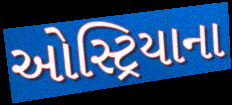
ઓસ્ટ્રિયાના